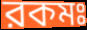
রকমঃ